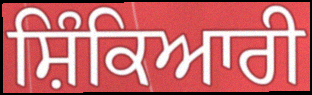
ਸ਼ਿੰਕਿਆਰੀ